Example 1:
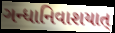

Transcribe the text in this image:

ગન્ધાનિવાશયાત્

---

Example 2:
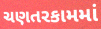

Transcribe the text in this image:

ચણતરકામમાં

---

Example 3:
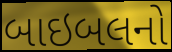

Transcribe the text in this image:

બાઇબલનો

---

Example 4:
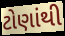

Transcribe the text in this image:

ટોણાંથી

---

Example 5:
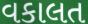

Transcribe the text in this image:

વકાલત